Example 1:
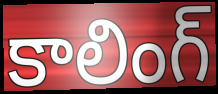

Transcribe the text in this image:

కాలింగ్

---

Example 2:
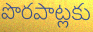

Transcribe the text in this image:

పొరపాట్లకు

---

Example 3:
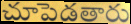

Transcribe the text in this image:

చూపెడతారు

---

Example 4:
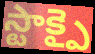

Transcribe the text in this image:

స్టాక్పై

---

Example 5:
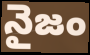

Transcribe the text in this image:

నైజం